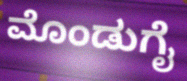
ಮೊಂಡುಗೈ